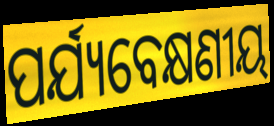
ପର୍ଯ୍ୟବେକ୍ଷଣୀୟ